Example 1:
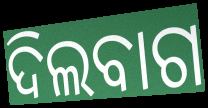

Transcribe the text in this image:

ଦିଲବାଗ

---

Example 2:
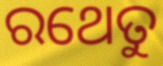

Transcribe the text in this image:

ରଥେତୁ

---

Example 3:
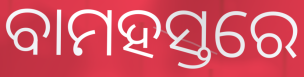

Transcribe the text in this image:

ବାମହସ୍ତରେ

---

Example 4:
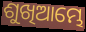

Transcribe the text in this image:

ଶୁଖିଆମ୍ଭେ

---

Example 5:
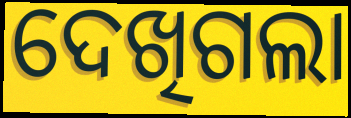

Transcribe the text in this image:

ଦେଖିଗଲା